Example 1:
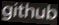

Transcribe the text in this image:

github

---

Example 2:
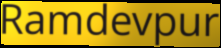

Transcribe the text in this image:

Ramdevpur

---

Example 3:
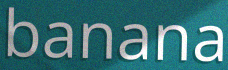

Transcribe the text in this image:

banana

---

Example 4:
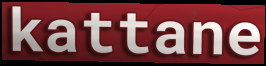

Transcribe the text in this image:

kattane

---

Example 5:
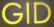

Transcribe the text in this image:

GID